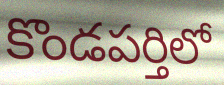
కొండపర్తిలో